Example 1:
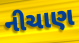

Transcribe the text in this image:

નીચાણ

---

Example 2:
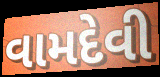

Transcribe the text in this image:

વામદેવી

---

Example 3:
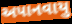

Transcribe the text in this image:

અપાનવાયુ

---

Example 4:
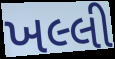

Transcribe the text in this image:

ખલ્લી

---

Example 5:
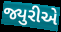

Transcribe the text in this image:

જ્યુરીએ